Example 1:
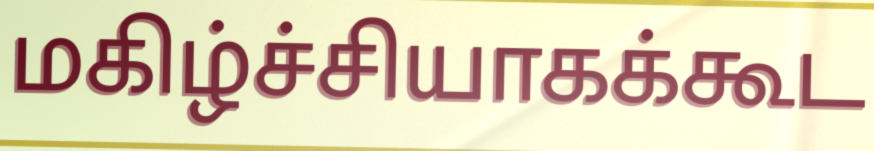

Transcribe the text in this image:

மகிழ்ச்சியாகக்கூட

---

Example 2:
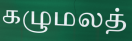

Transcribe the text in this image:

கழுமலத்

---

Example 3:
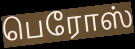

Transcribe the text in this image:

பெரோஸ்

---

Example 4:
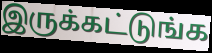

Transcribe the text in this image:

இருக்கட்டுங்க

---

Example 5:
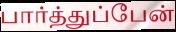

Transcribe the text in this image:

பார்த்துப்பேன்